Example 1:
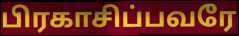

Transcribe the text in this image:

பிரகாசிப்பவரே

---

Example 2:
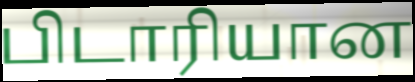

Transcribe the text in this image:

பிடாரியான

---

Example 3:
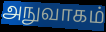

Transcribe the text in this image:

அநுவாகம்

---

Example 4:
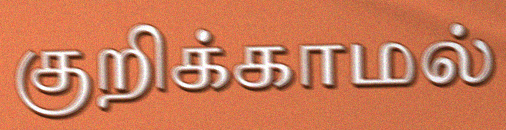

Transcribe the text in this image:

குறிக்காமல்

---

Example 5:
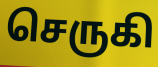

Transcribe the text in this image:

செருகி